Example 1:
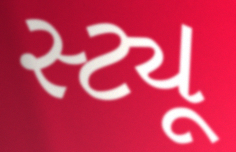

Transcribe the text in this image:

સ્ટ્યૂ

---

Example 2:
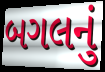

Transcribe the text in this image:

બગલનું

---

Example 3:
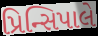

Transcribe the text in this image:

પ્રિન્સિપાલે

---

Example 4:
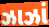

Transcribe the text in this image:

ઝાઝાં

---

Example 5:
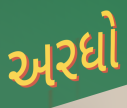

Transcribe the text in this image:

અરધો